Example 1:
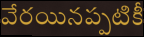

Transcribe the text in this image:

వేరయినప్పటికీ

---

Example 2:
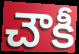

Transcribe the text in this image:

చౌకీ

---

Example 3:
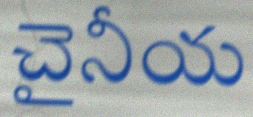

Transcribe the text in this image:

చైనీయ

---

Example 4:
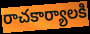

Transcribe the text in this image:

రాచకార్యాలకి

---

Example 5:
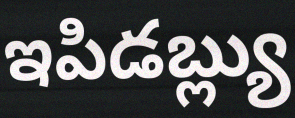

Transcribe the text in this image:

ఇపిడబ్ల్యు